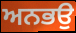
ਅਨਭਉ